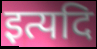
इत्यदि